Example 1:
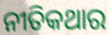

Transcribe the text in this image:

ନୀତିକଥାର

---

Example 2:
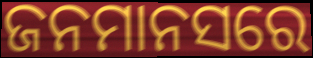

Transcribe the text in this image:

ଜନମାନସରେ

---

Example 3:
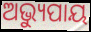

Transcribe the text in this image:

ଅଭ୍ୟୁପାୟ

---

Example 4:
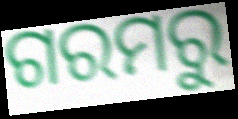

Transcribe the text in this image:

ଗରମରୁ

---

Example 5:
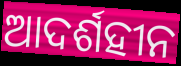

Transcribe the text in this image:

ଆଦର୍ଶହୀନ